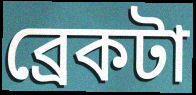
ব্রেকটা